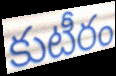
కుటీరం